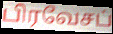
பிரவேசப்